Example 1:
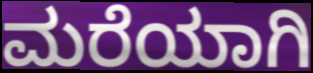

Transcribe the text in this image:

ಮರೆಯಾಗಿ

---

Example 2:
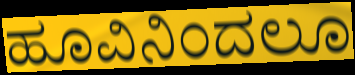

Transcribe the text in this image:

ಹೂವಿನಿಂದಲೂ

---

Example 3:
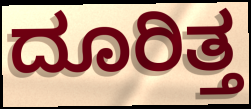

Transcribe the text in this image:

ದೂರಿತ್ತ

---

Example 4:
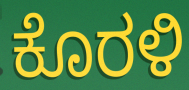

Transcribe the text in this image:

ಕೊರಳಿ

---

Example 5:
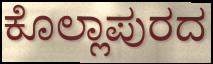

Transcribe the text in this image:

ಕೊಲ್ಲಾಪುರದ